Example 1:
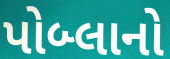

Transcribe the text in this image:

પોબ્લાનો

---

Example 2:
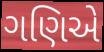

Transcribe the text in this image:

ગણિએ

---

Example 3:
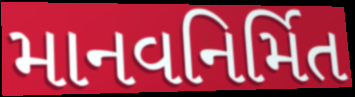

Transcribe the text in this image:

માનવનિર્મિત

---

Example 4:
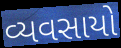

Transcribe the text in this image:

વ્યવસાયો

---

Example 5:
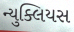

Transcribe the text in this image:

ન્યુક્લિયસ